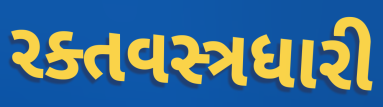
રક્તવસ્ત્રધારી